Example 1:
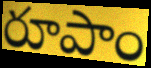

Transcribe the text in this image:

రూపాం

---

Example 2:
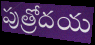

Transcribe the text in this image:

పుత్రోదయ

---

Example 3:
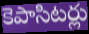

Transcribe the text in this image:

కెపాసిటర్లు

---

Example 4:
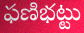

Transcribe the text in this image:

ఫణిభట్టు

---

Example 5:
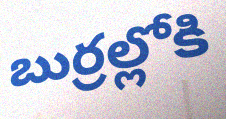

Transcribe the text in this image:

బుర్రల్లోకి